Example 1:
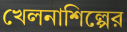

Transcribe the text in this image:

খেলনাশিল্পের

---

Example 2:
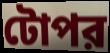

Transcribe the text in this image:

টোপর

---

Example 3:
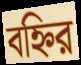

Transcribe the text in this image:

বহ্নির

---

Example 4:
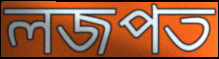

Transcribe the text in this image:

লজপত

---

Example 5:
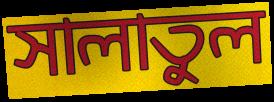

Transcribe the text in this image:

সালাতুল